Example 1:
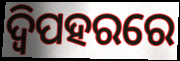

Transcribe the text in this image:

ଦ୍ୱିପହରରେ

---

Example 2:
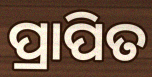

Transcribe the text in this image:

ପ୍ରାପିତ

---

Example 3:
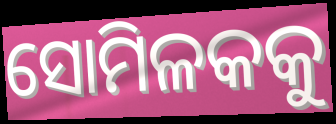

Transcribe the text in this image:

ସୋମିଳକକୁ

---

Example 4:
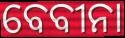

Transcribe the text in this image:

ବେବୀନା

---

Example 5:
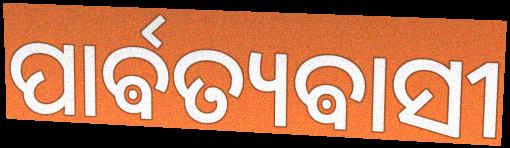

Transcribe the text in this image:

ପାର୍ଵତ୍ୟଵାସୀ